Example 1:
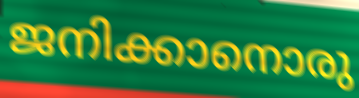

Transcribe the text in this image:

ജനിക്കാനൊരു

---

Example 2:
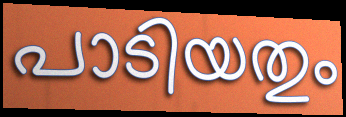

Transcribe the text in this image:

പാടിയതും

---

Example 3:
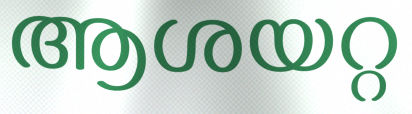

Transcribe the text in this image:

ആശയറ്റ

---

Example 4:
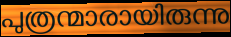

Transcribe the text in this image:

പുത്രന്മാരായിരുന്നു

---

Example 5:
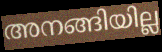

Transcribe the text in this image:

അനങ്ങിയില്ല